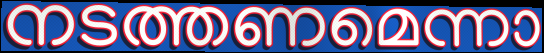
നടത്തണമെന്നാ